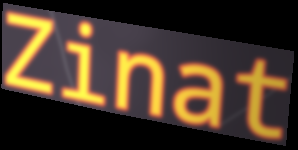
Zinat